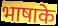
भाषाके